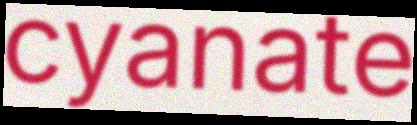
cyanate